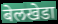
बेलखेडा